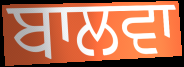
ਬਾਲਵਾ